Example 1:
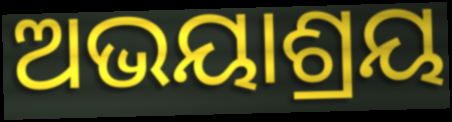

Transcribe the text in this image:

ଅଭୟାଶ୍ରୟ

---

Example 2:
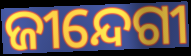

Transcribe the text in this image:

ଜୀନ୍ଦେଗୀ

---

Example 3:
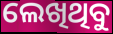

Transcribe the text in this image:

ଲେଖିଥିବୁ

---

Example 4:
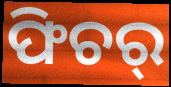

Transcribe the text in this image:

ଫିଚର୍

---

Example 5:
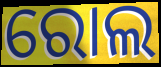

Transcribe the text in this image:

ରୋଲ